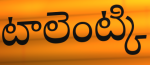
టాలెంట్కి